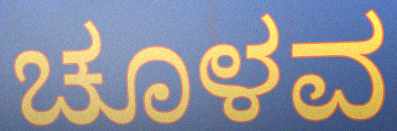
ಚೂಳವ